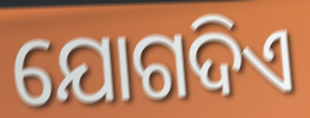
ଯୋଗଦିଏ